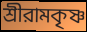
শ্রীরামকৃষ্ণ